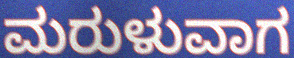
ಮರುಳುವಾಗ